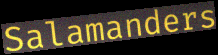
Salamanders